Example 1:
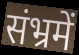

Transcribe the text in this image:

संभ्रमें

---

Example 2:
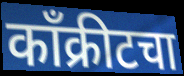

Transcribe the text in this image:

काँक्रीटचा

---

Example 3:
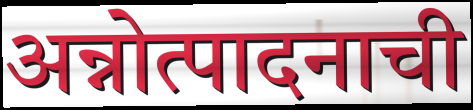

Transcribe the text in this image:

अन्नोत्पादनाची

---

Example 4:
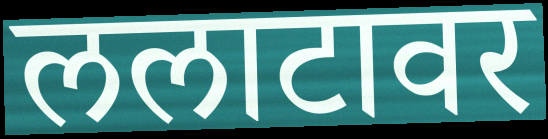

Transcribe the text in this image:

ललाटावर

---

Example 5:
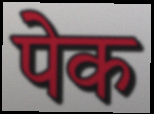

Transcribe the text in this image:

पेक